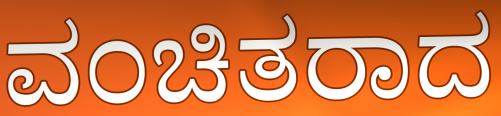
ವಂಚಿತರಾದ